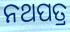
ନଥପତ୍ର